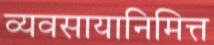
व्यवसायानिमित्त